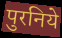
पुरनिये